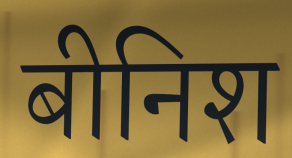
बीनिश